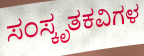
ಸಂಸ್ಕೃತಕವಿಗಳ